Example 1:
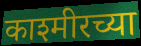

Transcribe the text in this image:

काश्मीरच्या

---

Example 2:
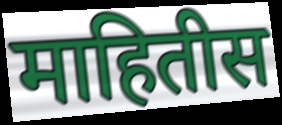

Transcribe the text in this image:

माहितीस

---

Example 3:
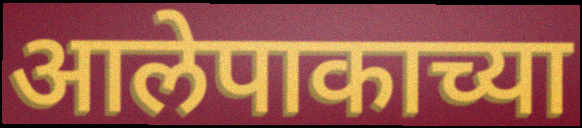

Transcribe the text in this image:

आलेपाकाच्या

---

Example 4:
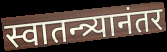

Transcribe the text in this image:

स्वातन्त्र्यानंतर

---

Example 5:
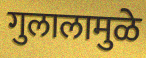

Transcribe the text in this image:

गुलालामुळे